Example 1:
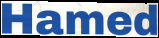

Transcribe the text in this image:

Hamed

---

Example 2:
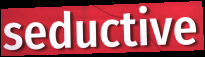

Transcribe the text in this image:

seductive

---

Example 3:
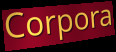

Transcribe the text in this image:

Corpora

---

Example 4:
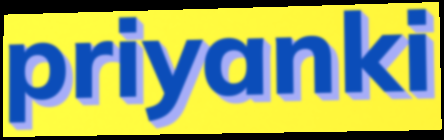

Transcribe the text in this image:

priyanki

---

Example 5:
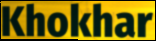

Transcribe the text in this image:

Khokhar